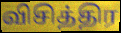
விசித்திர